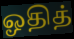
ஓதித்